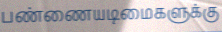
பண்ணையடிமைகளுக்கு